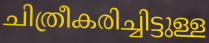
ചിത്രീകരിച്ചിട്ടുള്ള